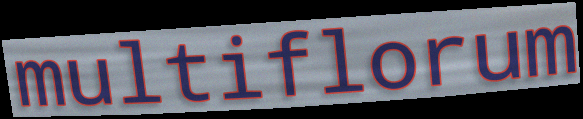
multiflorum